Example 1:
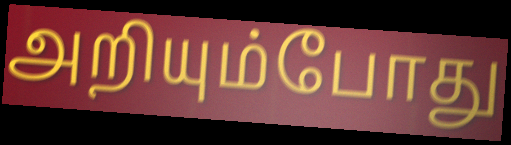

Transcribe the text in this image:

அறியும்போது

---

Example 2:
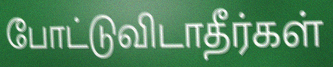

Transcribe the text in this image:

போட்டுவிடாதீர்கள்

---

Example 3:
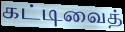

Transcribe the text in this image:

கட்டிவைத்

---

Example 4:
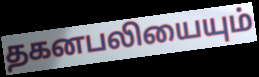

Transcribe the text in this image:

தகனபலியையும்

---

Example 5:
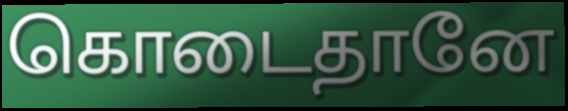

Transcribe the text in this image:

கொடைதானே